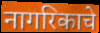
नागरिकाचे